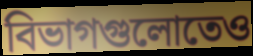
বিভাগগুলোতেও